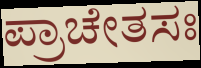
ಪ್ರಾಚೇತಸಃ